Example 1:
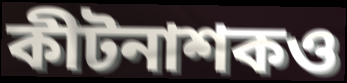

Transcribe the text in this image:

কীটনাশকও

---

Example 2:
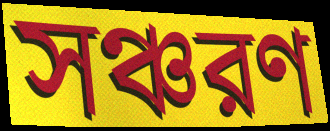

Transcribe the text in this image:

সঞ্চরণ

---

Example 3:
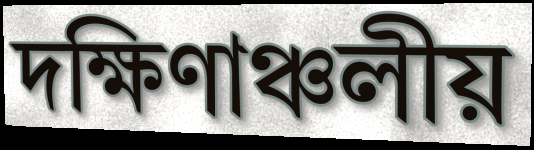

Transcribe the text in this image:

দক্ষিণাঞ্চলীয়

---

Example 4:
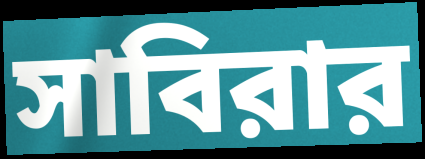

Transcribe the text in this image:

সাবিরার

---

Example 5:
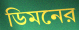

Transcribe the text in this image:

ডিমনের